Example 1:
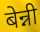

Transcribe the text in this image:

बेन्नी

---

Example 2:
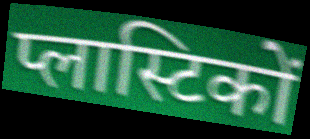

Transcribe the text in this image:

प्लास्टिकों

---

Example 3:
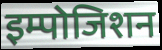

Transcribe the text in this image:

इम्पोजिशन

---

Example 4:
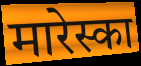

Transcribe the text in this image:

मारेस्का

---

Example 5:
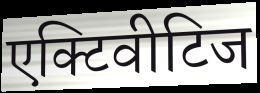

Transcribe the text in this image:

एक्टिवीटिज